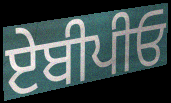
ਏਬੀਪੀਓ